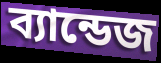
ব্যান্ডেজ